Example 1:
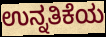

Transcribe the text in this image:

ಉನ್ನತಿಕೆಯ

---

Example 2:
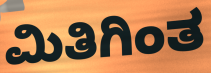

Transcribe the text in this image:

ಮಿತಿಗಿಂತ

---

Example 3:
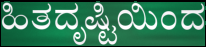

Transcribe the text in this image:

ಹಿತದೃಷ್ಟಿಯಿಂದ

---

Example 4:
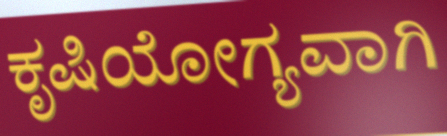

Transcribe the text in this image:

ಕೃಷಿಯೋಗ್ಯವಾಗಿ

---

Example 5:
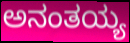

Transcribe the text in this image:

ಅನಂತಯ್ಯ